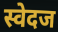
स्वेदज